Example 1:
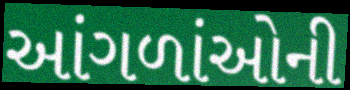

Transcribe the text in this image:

આંગળાંઓની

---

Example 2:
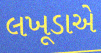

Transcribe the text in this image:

લખૂડાએ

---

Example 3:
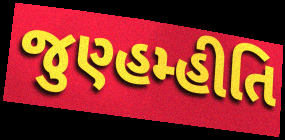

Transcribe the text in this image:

જુણ્હમ્હીતિ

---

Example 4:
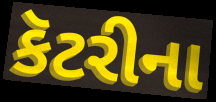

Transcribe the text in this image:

કૅટરીના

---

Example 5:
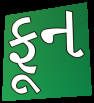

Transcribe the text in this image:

ફૂન